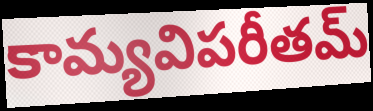
కామ్యవిపరీతమ్